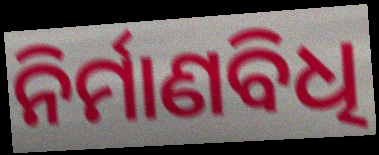
ନିର୍ମାଣବିଧି